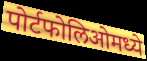
पोर्टफोलिओमध्ये